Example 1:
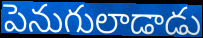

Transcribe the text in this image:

పెనుగులాడాడు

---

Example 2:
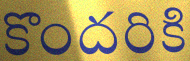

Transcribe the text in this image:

కొందరికి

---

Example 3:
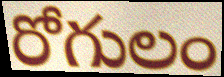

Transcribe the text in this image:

రోగులం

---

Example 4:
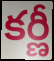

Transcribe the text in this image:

కర్ణీ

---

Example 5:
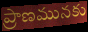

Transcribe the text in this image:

ప్రాణమునకు